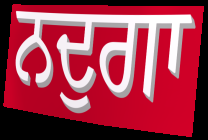
ਨਦੁਗਾ